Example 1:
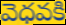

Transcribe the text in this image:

వెధవకి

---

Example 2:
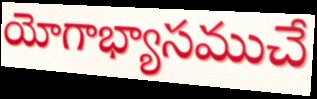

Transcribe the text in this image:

యోగాభ్యాసముచే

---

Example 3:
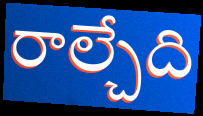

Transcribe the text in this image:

రాల్చేది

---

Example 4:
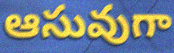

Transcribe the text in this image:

ఆసువుగా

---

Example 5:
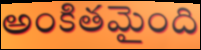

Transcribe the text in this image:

అంకితమైంది